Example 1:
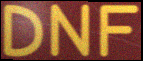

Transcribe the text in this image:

DNF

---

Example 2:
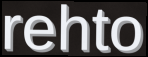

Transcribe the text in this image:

rehto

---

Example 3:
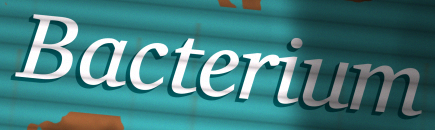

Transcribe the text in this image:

Bacterium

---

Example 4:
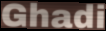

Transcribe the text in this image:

Ghadi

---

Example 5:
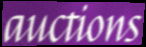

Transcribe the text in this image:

auctions